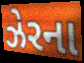
ઝેરના